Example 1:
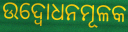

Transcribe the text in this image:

ଉଦ୍ବୋଧନମୂଳକ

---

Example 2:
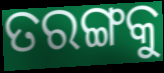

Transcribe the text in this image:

ତରଙ୍ଗକୁ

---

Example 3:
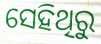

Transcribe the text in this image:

ସେହିଥିରୁ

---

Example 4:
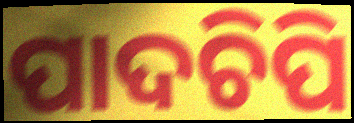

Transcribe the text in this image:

ପାଦଚିପି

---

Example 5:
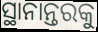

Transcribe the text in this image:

ସ୍ଥାନାନ୍ତରକୁ